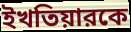
ইখতিয়ারকে